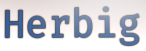
Herbig